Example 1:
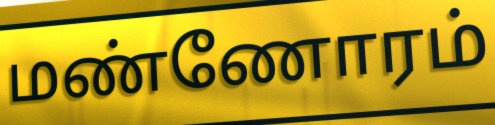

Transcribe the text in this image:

மண்ணோரம்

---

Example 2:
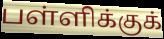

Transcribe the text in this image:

பள்ளிக்குக்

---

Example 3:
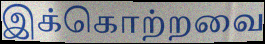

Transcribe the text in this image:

இக்கொற்றவை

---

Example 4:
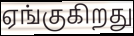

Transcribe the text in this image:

ஏங்குகிறது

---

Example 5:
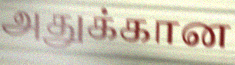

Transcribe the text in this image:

அதுக்கான